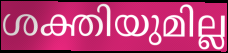
ശക്തിയുമില്ല